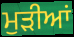
ਮੁੜੀਆਂ